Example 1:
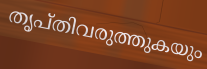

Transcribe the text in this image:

തൃപ്തിവരുത്തുകയും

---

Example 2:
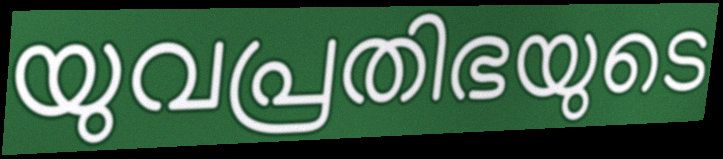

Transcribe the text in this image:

യുവപ്രതിഭയുടെ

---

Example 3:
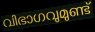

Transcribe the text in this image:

വിഭാഗവുമുണ്ട്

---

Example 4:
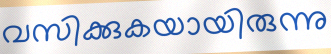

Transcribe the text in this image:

വസിക്കുകയായിരുന്നു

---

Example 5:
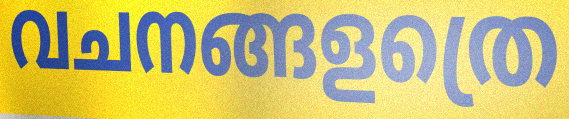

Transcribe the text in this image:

വചനങ്ങളത്രെ